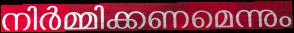
നിർമ്മിക്കണമെന്നും